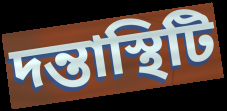
দন্তাস্থিটি